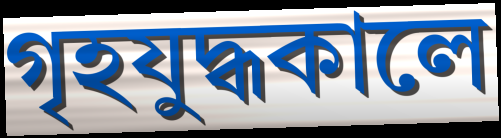
গৃহযুদ্ধকালে